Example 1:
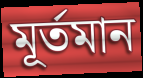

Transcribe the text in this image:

মূৰ্তমান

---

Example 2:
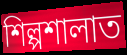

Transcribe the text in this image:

শিল্পশালাত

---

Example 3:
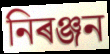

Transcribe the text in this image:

নিৰঞ্জন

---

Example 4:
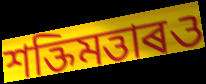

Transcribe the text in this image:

শক্তিমত্তাৰও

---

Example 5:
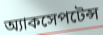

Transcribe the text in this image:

অ্যাকসেপটেন্স